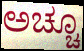
ಅಚ್ಚೂ